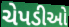
ચેપડીઓ